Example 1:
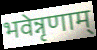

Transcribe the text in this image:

भवेन्नृणाम्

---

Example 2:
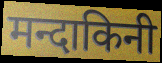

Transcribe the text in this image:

मन्दाकिनी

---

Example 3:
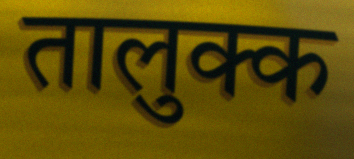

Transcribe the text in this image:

तालुक्क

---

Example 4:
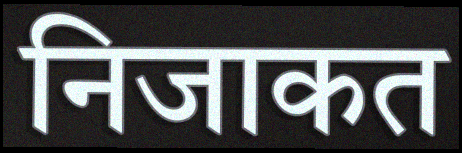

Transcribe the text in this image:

निजाकत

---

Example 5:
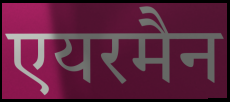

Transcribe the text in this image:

एयरमैन